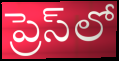
ప్రెస్‌లో